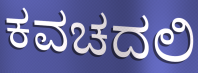
ಕವಚದಲಿ